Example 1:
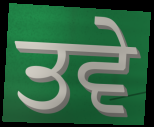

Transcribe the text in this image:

ਤਵੇ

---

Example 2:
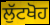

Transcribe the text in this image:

ਲੁੱਟਖੋਹ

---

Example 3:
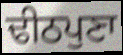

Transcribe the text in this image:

ਢੀਠਪੁਣਾ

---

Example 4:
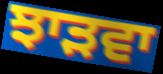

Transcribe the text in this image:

ਝਾੜਵਾ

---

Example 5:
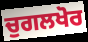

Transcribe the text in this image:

ਚੁਗਲਖੋਰ